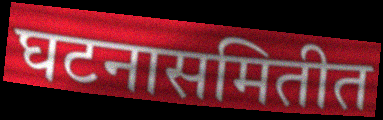
घटनासमितीत